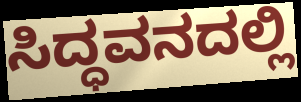
ಸಿದ್ಧವನದಲ್ಲಿ